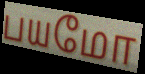
பயமோ